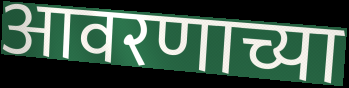
आवरणाच्या